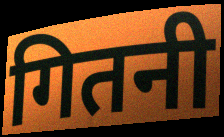
गितनी